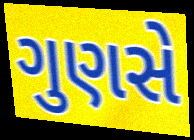
ગુણસે